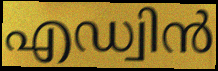
എഡ്വിൻ